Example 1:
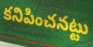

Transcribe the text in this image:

కనిపించనట్టు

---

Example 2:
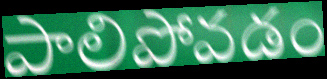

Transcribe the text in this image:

పాలిపోవడం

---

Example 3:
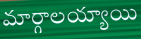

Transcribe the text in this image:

మార్గాలయ్యాయి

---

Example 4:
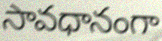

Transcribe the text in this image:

సావధానంగా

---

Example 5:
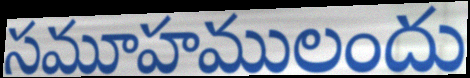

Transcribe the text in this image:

సమూహములందు